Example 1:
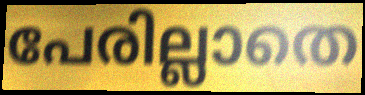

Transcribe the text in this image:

പേരില്ലാതെ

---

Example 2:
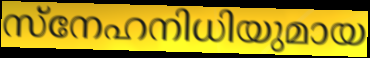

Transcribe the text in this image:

സ്നേഹനിധിയുമായ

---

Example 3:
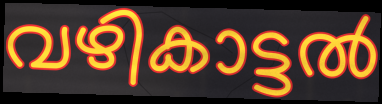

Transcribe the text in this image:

വഴികാട്ടൽ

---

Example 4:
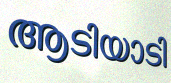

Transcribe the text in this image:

ആടിയാടി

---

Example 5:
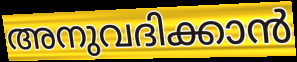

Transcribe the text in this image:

അനുവദിക്കാൻ